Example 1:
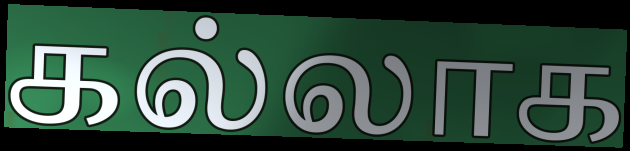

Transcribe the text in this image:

கல்லாக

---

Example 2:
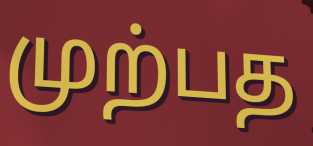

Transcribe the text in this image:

முற்பத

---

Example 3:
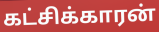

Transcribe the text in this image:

கட்சிக்காரன்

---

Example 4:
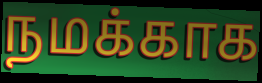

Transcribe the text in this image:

நமக்காக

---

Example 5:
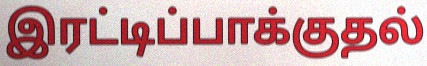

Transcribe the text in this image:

இரட்டிப்பாக்குதல்